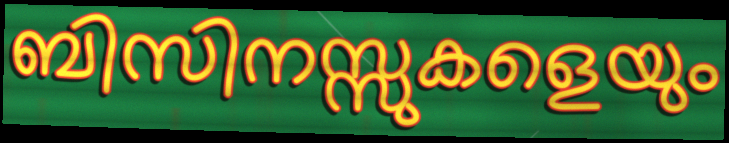
ബിസിനസ്സുകളെയും